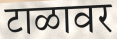
टाळावर